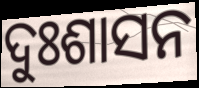
ଦୁଃଶାସନ